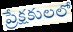
ప్రేక్షకులలో